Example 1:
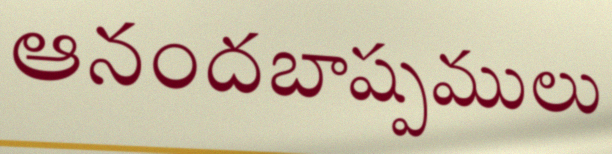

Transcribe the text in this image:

ఆనందబాష్పములు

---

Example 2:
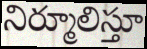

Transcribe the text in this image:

నిర్మూలిస్తూ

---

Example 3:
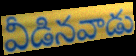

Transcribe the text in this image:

వీడినవాడు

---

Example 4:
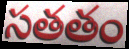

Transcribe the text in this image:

సతతం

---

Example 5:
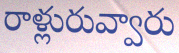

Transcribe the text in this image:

రాళ్లురువ్వారు